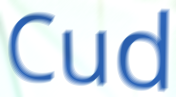
Cud